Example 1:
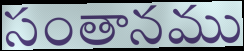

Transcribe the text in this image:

సంతానము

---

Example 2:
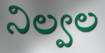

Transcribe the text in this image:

నిల్వల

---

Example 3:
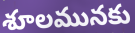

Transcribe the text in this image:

శూలమునకు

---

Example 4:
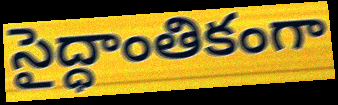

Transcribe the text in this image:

సైద్ధాంతికంగా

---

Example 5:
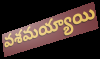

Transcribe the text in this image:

వశమయ్యాయి